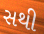
સથી